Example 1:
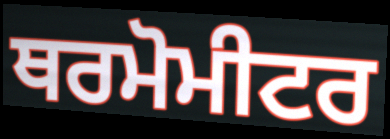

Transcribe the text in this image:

ਥਰਮੋਮੀਟਰ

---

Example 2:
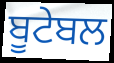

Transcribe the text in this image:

ਬੂਟੇਬਲ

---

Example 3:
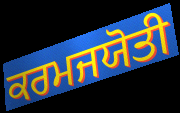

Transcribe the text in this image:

ਕਰਮਜਯੋਤੀ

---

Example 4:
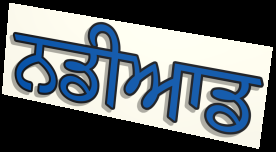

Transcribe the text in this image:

ਨਡੀਆਡ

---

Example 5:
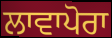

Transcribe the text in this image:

ਲਾਵਾਪੋਰਾ